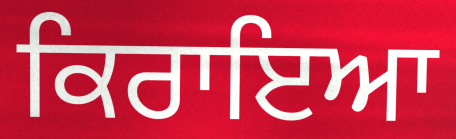
ਕਿਰਾਇਆ